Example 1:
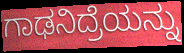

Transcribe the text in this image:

ಗಾಢನಿದ್ರೆಯನ್ನು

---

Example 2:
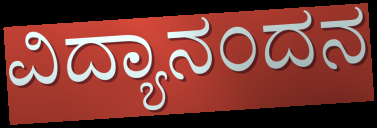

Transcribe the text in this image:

ವಿದ್ಯಾನಂದನ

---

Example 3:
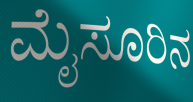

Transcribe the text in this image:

ಮೈಸೂರಿನ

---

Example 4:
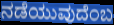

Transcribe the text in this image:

ನಡೆಯುವುದೆಂಬ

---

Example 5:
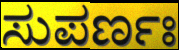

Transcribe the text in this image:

ಸುಪರ್ಣಃ